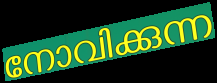
നോവിക്കുന്ന